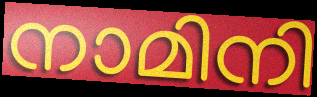
നാമിനി